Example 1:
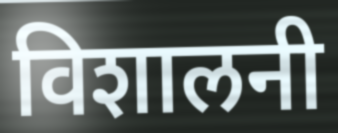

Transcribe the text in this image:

विशालनी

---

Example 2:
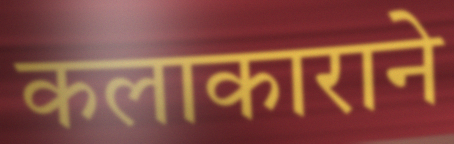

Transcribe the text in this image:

कलाकाराने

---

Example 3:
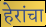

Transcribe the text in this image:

हेरांचा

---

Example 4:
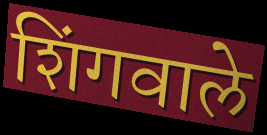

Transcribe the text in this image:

शिंगवाले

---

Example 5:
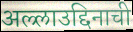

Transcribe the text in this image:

अल्लाउद्दिनाची